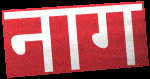
नाग